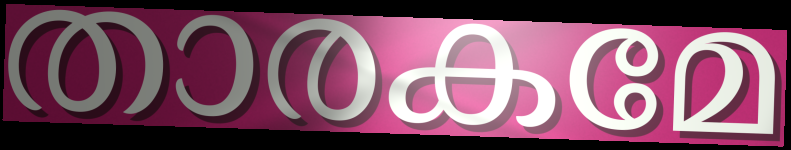
താരകമേ